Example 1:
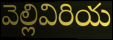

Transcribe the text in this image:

వెల్లివిరియ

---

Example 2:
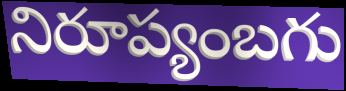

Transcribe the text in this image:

నిరూప్యంబగు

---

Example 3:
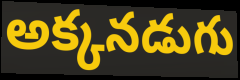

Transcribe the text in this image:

అక్కనడుగు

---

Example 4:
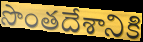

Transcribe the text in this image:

సొంతదేశానికి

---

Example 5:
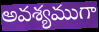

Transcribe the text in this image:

అవశ్యముగా